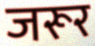
जरूर